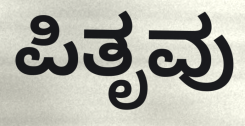
ಪಿತೃವು